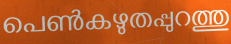
പെൺകഴുതപ്പുറത്തു